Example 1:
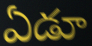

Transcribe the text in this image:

ఏడూ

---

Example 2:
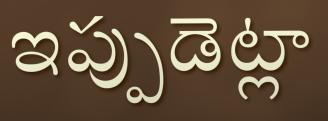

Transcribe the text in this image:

ఇప్పుడెట్లా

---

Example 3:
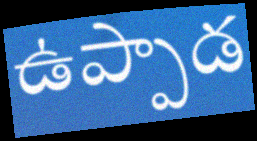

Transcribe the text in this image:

ఉప్పాడ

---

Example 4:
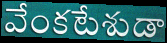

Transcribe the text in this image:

వేంకటేశుడా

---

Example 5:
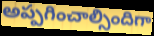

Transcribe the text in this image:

అప్పగించాల్సిందిగా